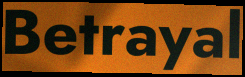
Betrayal